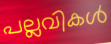
പല്ലവികൾ